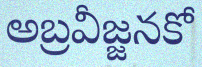
అబ్రవీజ్జనకో